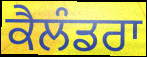
ਕੈਲੰਡਰਾ